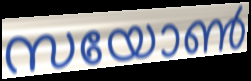
സയോൺ